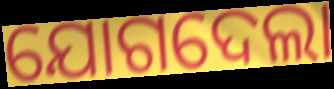
ଯୋଗଦେଲା